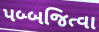
પબ્બજિત્વા